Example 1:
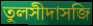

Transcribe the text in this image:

তুলসীদাসজি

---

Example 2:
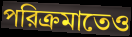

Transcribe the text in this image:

পরিক্রমাতেও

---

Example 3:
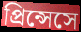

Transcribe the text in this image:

প্রিন্সেসে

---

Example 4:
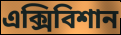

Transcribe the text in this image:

এক্সিবিশান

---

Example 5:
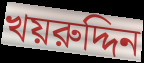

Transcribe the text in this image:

খয়রুদ্দিন